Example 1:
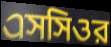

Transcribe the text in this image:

এসসিওর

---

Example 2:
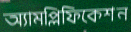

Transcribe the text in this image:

অ্যামপ্লিফিকেশন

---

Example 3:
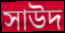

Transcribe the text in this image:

সাউদ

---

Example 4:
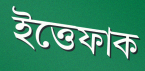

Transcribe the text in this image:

ইত্তেফাক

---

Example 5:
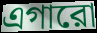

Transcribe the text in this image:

এগারো